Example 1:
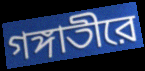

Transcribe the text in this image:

গঙ্গাতীরে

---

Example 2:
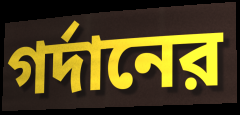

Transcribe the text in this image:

গর্দানের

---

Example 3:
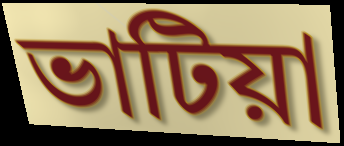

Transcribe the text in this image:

ভাটিয়া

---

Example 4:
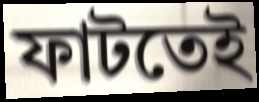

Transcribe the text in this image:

ফাটতেই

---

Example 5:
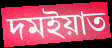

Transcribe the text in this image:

দমইয়াত